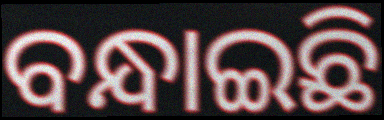
ବନ୍ଧାଇଛି